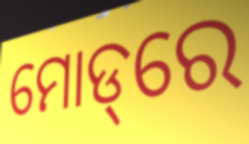
ମୋଡ୍‌ରେ